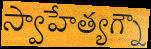
స్వాహేత్యగ్నౌ